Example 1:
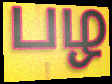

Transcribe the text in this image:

பழ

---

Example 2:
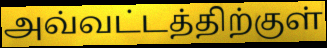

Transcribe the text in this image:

அவ்வட்டத்திற்குள்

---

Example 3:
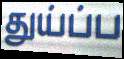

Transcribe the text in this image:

துய்ப்ப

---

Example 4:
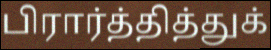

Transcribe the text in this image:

பிரார்த்தித்துக்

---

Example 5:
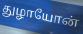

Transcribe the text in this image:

துழாயோன்